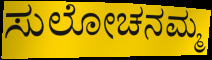
ಸುಲೋಚನಮ್ಮ